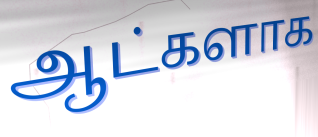
ஆட்களாக